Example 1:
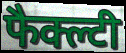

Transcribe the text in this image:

फैक्ल्टी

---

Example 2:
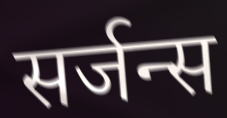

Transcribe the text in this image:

सर्जन्स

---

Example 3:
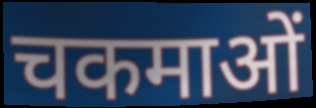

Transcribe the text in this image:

चकमाओं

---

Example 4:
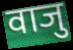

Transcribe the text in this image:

वाजु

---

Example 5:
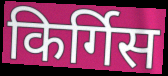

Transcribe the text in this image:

किर्गिस